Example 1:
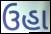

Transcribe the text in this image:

ઉહા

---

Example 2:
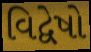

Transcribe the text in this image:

વિદ્વેષો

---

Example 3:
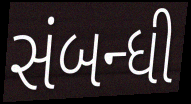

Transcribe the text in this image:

સંબન્ધી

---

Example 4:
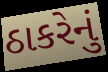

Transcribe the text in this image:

ઠાકરેનું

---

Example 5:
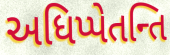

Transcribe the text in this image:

અધિપ્પેતન્તિ